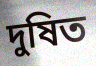
দুষিত